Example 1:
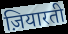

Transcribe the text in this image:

ज़ियारती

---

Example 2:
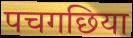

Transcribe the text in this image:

पचगछिया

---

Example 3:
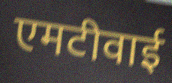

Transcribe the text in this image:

एमटीवाई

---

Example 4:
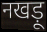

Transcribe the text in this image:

नखड़ू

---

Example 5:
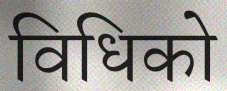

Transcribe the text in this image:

विधिको